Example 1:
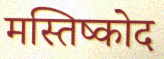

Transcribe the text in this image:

मस्तिष्कोद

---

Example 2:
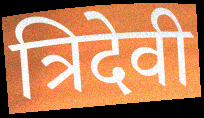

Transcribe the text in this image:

त्रिदेवी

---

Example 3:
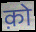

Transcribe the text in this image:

क़ो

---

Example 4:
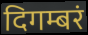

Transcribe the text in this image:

दिगम्बरं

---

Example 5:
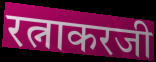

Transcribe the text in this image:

रत्नाकरजी